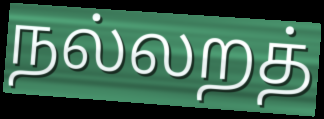
நல்லறத்